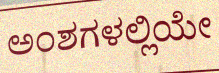
ಅಂಶಗಳಲ್ಲಿಯೇ